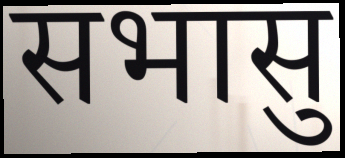
सभासु